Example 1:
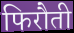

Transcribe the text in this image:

फिरौती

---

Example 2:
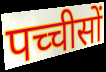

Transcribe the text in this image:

पच्चीसों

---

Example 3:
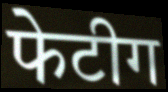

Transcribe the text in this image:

फेटीग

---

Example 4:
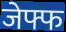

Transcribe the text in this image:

जेफ्फ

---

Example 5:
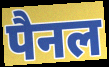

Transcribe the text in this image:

पैनल